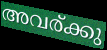
അവര്ക്കു